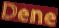
Dene